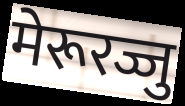
मेरूरज्जु